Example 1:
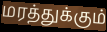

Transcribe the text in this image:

மரத்துக்கும்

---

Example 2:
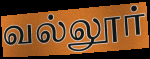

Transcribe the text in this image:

வல்லூர்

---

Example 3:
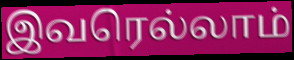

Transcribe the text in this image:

இவரெல்லாம்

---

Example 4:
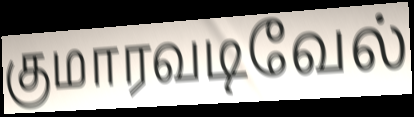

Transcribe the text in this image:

குமாரவடிவேல்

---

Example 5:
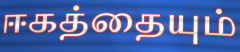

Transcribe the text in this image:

ஈகத்தையும்